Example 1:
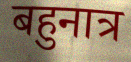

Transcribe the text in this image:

बहुनात्र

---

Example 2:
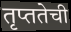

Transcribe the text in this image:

तृप्ततेची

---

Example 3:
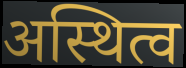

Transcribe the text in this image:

अस्थित्व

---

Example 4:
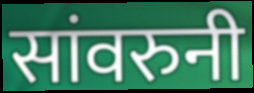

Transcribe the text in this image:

सांवरुनी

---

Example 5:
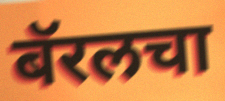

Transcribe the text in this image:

बॅरलचा